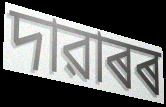
দাৱাৰৰ